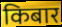
किबार